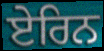
ਏਰਿਨ